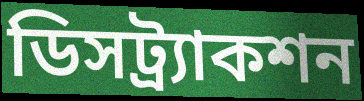
ডিসট্র্যাকশন